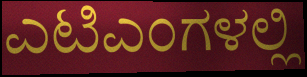
ಎಟಿಎಂಗಳಲ್ಲಿ